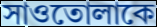
সাওতোলাকে